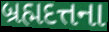
બ્રહ્મદત્તના